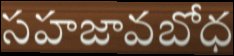
సహజావబోధ